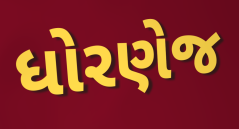
ધોરણેજ